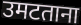
उमटताना